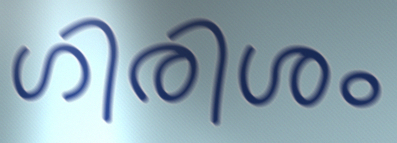
ഗിരിശം